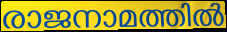
രാജനാമത്തിൽ